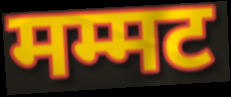
मम्मट